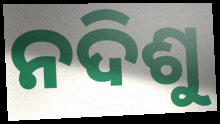
ନଦିଶୁ